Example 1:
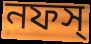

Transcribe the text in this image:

নফস্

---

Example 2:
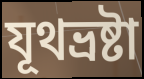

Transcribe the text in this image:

যূথভ্রষ্টা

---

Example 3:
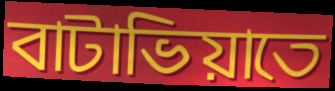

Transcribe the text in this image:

বাটাভিয়াতে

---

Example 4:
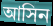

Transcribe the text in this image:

আসিন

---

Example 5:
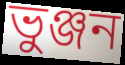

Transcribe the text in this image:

ভুঞ্জন